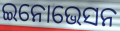
ଇନୋଭେସନ